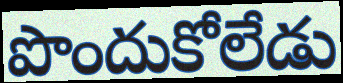
పొందుకోలేడు